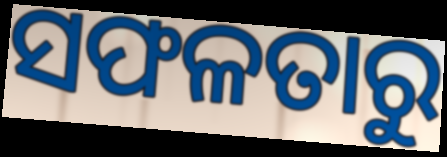
ସଫଳତାରୁ